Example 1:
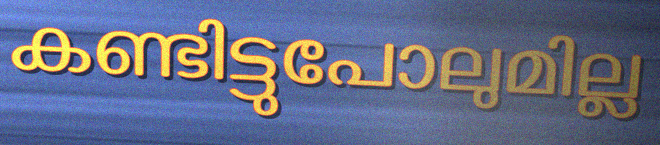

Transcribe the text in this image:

കണ്ടിട്ടുപോലുമില്ല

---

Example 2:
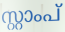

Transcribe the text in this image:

സ്റ്റാംപ്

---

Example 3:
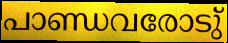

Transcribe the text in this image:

പാണ്ഡവരോടു്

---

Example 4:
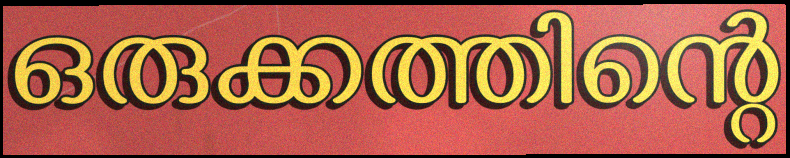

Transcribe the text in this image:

ഒരുക്കത്തിന്റെ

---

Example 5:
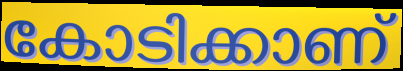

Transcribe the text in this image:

കോടിക്കാണ്